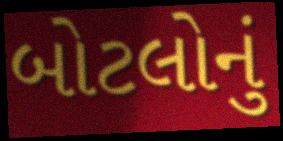
બોટલોનું